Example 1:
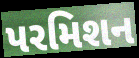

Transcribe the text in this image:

પરમિશન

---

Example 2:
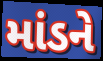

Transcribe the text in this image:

માંડને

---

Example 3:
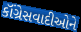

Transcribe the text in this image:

કૉંગ્રેસવાદીઓને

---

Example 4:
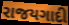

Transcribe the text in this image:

રાજયગાદી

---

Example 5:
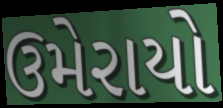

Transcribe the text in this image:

ઉમેરાયો